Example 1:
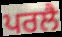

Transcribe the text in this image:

ਪਰਲੈ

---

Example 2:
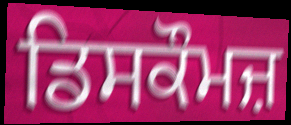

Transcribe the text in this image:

ਡਿਸਕੌਮਜ਼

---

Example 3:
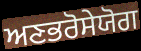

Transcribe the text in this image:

ਅਣਭਰੋਸੇਯੋਗ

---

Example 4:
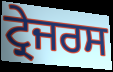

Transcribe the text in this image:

ਟ੍ਰੇਜਰਸ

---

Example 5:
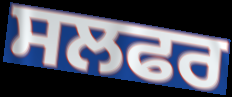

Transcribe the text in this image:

ਸਲਫਰ